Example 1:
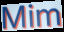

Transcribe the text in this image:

Mim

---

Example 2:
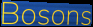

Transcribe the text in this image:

Bosons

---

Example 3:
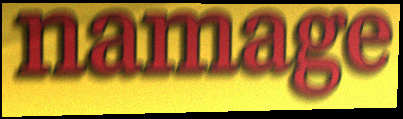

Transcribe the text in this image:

namage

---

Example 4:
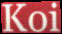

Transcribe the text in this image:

Koi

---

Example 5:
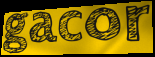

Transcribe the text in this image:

gacor